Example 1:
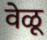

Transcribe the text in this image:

वेळू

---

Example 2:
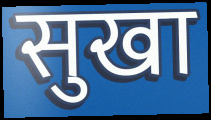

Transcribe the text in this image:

सुखा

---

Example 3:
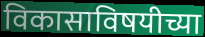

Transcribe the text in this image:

विकासाविषयीच्या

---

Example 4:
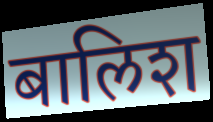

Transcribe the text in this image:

बालिश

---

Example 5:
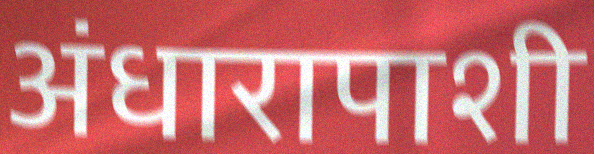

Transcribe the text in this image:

अंधारापाशी